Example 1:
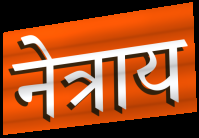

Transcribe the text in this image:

नेत्राय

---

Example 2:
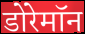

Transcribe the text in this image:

डोरेमॉन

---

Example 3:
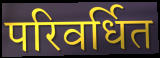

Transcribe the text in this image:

परिवर्धित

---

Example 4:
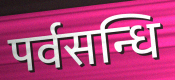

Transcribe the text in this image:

पर्वसन्धि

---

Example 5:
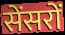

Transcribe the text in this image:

सेंसरों